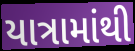
યાત્રામાંથી